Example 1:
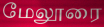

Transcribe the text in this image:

மேலூரை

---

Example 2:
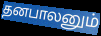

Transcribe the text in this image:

தனபாலனும்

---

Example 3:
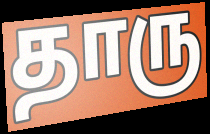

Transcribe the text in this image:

தாரு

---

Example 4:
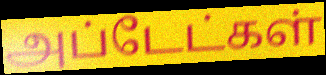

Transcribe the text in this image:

அப்டேட்கள்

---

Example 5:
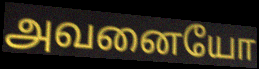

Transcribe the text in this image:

அவனையோ